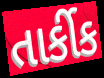
તાર્કીક